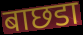
बाछडा